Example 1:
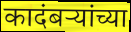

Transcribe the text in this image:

कादंबऱ्यांच्या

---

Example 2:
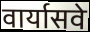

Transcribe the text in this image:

वार्यासवे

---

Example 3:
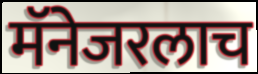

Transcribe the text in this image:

मॅनेजरलाच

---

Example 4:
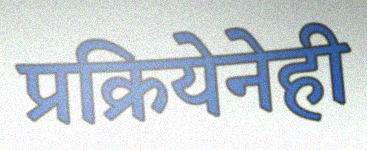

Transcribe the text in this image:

प्रक्रियेनेही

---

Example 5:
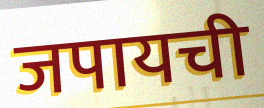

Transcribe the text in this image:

जपायची